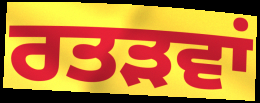
ਰਤੜਵਾਂ